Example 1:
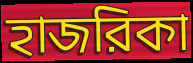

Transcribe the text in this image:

হাজরিকা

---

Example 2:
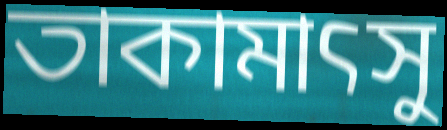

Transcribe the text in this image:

তাকামাৎসু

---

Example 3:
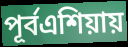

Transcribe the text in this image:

পূর্বএশিয়ায়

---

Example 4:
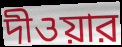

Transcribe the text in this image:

দীওয়ার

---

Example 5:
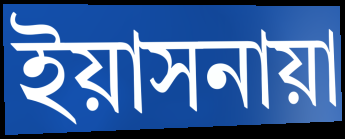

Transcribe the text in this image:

ইয়াসনায়া